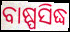
ବାଷ୍ପସିଦ୍ଧ